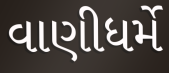
વાણીધર્મે